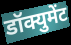
डॉक्युमेंट